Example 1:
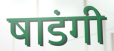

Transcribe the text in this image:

षाडंगी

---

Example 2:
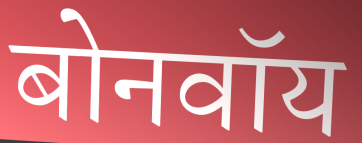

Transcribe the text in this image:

बोनवॉय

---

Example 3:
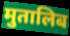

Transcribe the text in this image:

मुतालिब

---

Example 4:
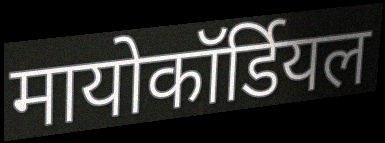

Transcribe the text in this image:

मायोकॉर्डियल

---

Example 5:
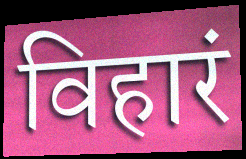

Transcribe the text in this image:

विहारं